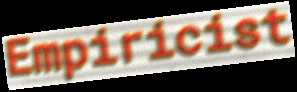
Empiricist